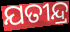
ଯତୀନ୍ଦ୍ର